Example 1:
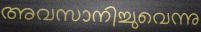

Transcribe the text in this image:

അവസാനിച്ചുവെന്നു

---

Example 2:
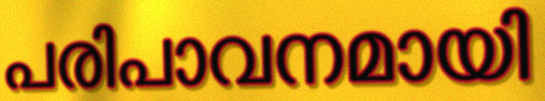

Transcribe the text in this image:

പരിപാവനമായി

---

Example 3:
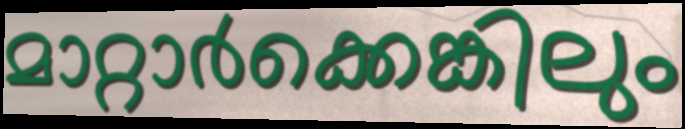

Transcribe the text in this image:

മാറ്റാർക്കെങ്കിലും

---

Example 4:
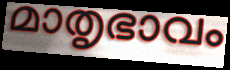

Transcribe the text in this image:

മാതൃഭാവം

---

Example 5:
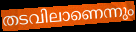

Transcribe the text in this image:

തടവിലാണെന്നും